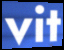
vit